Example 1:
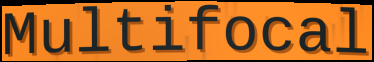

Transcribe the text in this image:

Multifocal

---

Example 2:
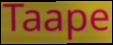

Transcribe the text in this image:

Taape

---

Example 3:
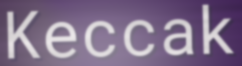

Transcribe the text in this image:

Keccak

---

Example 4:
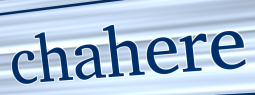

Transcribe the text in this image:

chahere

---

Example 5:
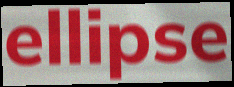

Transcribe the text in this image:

ellipse